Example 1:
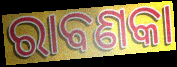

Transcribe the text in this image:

ରାବଣକା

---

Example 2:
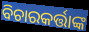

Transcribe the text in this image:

ବିଚାରକର୍ତ୍ତାଙ୍କ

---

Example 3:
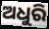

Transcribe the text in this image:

ଅଧୁରି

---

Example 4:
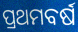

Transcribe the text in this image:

ପ୍ରଥମବର୍ଷ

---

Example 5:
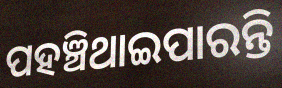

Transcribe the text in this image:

ପହଞ୍ଚିଥାଇପାରନ୍ତି